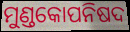
ମୁଣ୍ଡକୋପନିଷଦ